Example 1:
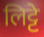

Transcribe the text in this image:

लिट्टे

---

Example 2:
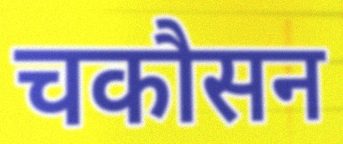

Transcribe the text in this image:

चकौसन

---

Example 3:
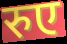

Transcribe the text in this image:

रुए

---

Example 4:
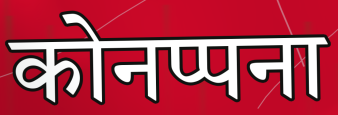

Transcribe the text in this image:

कोनप्पना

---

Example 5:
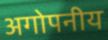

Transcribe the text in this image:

अगोपनीय